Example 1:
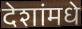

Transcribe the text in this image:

देशांमधे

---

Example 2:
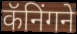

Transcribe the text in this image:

कॅनिंगने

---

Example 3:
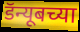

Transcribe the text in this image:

डॅन्यूबच्या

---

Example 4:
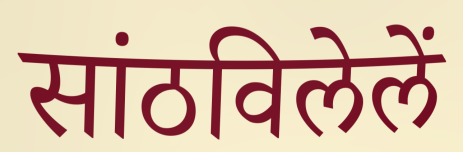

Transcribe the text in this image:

सांठविलेलें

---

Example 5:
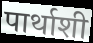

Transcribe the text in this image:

पार्थाशी